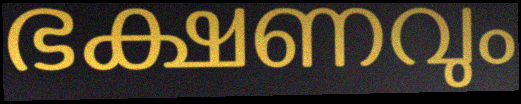
ഭക്ഷണവും